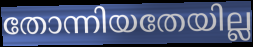
തോന്നിയതേയില്ല